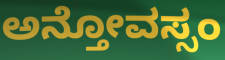
ಅನ್ತೋವಸ್ಸಂ